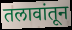
तलावांतून